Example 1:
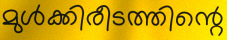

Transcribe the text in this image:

മുൾക്കിരീടത്തിന്റെ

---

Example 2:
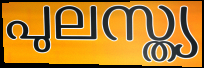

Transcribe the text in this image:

പുലസ്ത്യ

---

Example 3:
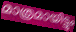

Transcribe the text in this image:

മാത്രമായിട്ടും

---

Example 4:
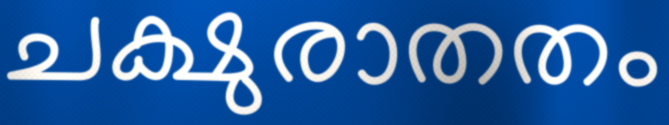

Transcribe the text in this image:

ചക്ഷുരാതതം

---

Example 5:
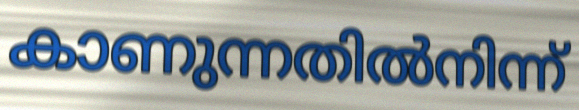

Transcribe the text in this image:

കാണുന്നതിൽനിന്ന്